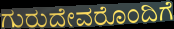
ಗುರುದೇವರೊಂದಿಗೆ